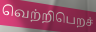
வெற்றிபெறச்